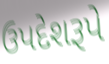
ઉપદેશરૂપે